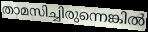
താമസിച്ചിരുന്നെങ്കിൽ